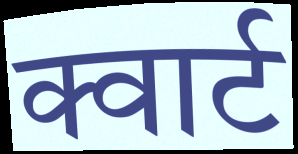
क्वार्ट